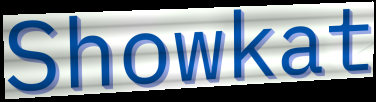
Showkat